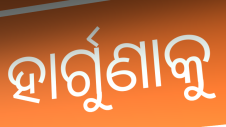
ହାର୍ଗୁଣାକୁ